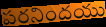
పరనిందయు